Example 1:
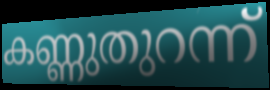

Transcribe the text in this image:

കണ്ണുതുറന്ന്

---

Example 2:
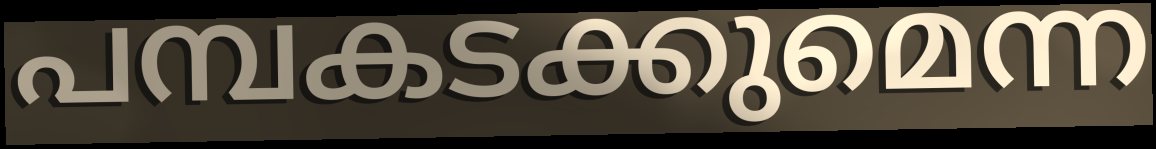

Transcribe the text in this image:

പമ്പകടക്കുമെന്ന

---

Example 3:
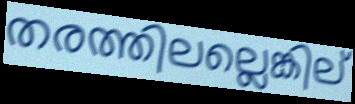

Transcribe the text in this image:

തരത്തിലല്ലെങ്കില്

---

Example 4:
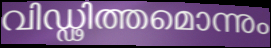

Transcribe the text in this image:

വിഡ്ഢിത്തമൊന്നും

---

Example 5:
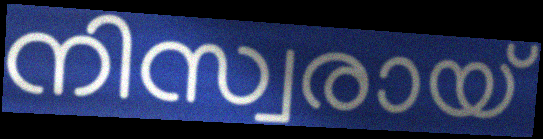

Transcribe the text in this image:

നിസ്വരായ്